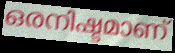
ഒരനിഷ്ടമാണ്